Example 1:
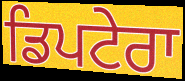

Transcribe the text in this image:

ਡਿਪਟੇਰਾ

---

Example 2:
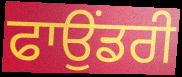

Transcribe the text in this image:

ਫਾਉਂਡਰੀ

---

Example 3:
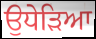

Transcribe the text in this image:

ਉਧੇੜਿਆ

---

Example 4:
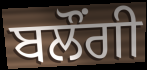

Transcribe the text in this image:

ਬਲੌਂਗੀ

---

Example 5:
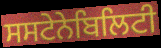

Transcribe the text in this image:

ਸਸਟੇਨੇਬਿਲਿਟੀ